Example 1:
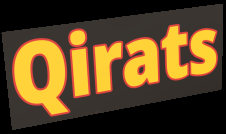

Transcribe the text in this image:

Qirats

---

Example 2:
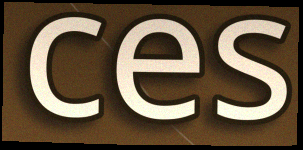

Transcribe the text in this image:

ces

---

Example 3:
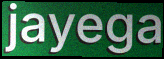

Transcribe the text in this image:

jayega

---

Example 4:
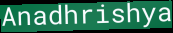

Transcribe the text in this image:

Anadhrishya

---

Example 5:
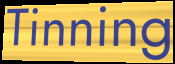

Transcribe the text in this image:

Tinning